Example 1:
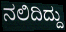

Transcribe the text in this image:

ನಲಿದಿದ್ದು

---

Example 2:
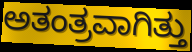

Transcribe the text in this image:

ಅತಂತ್ರವಾಗಿತ್ತು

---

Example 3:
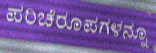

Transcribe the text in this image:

ಪರಿಚೆರೂಪಗಳನ್ನೂ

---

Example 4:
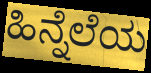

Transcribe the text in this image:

ಹಿನ್ನೆಲೆಯ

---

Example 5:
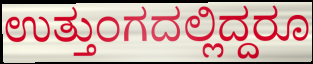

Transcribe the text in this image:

ಉತ್ತುಂಗದಲ್ಲಿದ್ದರೂ